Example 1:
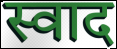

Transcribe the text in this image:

स्‍वाद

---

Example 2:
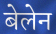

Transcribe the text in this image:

बेलेन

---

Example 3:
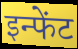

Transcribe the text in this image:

इन्फेंट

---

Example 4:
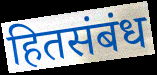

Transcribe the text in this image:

हितसंबंध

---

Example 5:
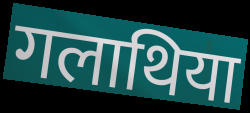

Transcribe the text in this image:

गलाथिया